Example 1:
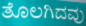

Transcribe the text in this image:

ತೊಲಗಿದವು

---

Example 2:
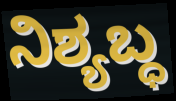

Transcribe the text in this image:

ನಿಶ್ಯಬ್ಧ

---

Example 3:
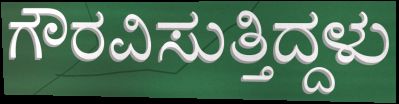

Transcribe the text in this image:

ಗೌರವಿಸುತ್ತಿದ್ದಳು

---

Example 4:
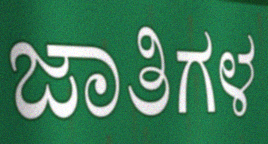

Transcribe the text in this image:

ಜಾತಿಗಳ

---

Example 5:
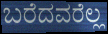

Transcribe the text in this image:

ಬರೆದವರೆಲ್ಲ